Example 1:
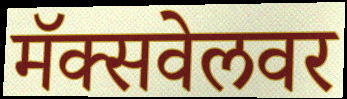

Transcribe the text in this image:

मॅक्सवेलवर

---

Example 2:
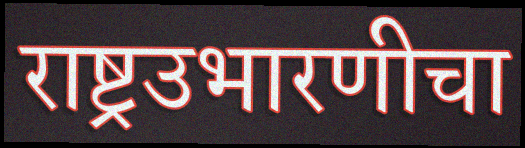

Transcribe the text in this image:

राष्ट्रउभारणीचा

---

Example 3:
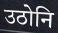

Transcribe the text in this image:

उठोनि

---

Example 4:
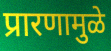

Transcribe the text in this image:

प्रारणामुळे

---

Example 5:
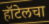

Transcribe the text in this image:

हॉटेलचा